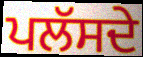
ਪਲੱਸਦੇ